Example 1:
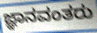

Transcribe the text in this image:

ಜ್ಞಾನವಂತರು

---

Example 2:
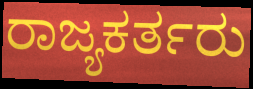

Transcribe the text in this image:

ರಾಜ್ಯಕರ್ತರು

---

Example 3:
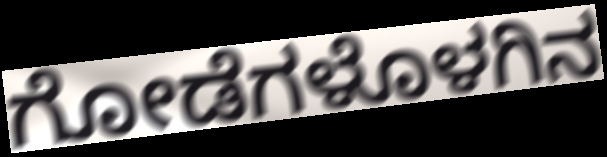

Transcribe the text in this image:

ಗೋಡೆಗಳೊಳಗಿನ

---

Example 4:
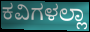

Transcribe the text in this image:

ಕವಿಗಳಲ್ಲಾ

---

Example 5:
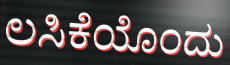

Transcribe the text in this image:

ಲಸಿಕೆಯೊಂದು